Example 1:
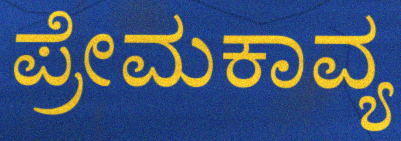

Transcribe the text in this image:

ಪ್ರೇಮಕಾವ್ಯ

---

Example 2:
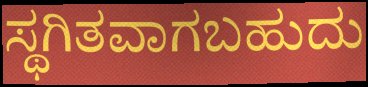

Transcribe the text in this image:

ಸ್ಥಗಿತವಾಗಬಹುದು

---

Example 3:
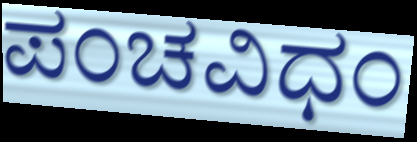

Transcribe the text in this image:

ಪಂಚವಿಧಂ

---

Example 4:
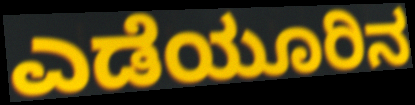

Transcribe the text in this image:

ಎಡೆಯೂರಿನ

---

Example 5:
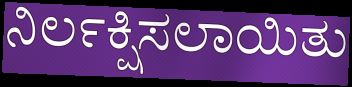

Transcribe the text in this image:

ನಿರ್ಲಕ್ಷಿಸಲಾಯಿತು